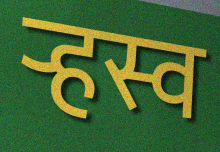
ऱ्हस्व